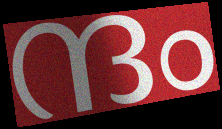
ന്ദം